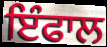
ਇੰਫਾਲ